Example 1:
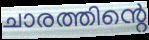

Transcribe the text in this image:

ചാരത്തിന്റെ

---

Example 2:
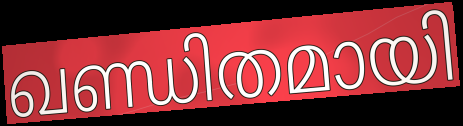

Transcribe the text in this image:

ഖണ്ഡിതമായി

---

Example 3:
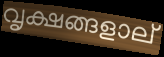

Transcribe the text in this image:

വൃക്ഷങ്ങളാല്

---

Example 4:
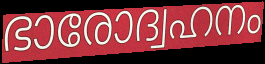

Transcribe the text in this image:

ഭാരോദ്വഹനം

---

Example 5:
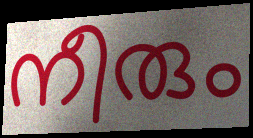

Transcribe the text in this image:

നീരും